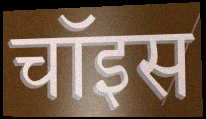
चॉइस